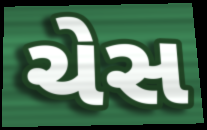
ચેસ